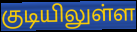
குடியிலுள்ள